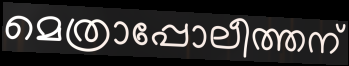
മെത്രാപ്പോലീത്തന്